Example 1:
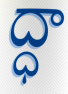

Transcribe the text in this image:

ద్ధా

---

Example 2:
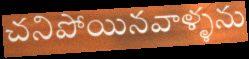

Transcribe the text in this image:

చనిపోయినవాళ్ళను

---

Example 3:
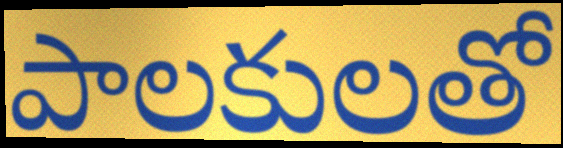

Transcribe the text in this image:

పాలకులతో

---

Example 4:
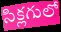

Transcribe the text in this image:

సిక్లగులో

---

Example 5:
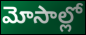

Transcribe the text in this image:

మోసాల్లో